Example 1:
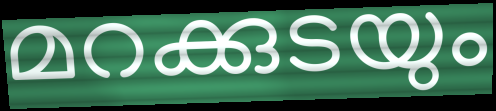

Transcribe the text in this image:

മറക്കുടയും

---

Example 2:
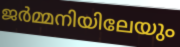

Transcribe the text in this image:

ജർമ്മനിയിലേയും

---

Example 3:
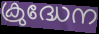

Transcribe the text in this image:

ക്രുദ്ധേന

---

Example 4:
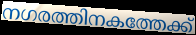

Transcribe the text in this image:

നഗരത്തിനകത്തേക്ക്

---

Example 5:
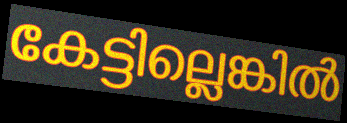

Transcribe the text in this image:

കേട്ടില്ലെങ്കിൽ